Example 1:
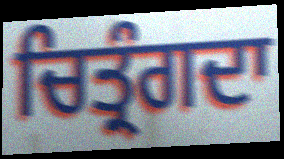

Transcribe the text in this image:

ਚਿਤ੍ਰੰਗਦਾ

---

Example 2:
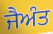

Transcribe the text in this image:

ਜੈਅੰਤ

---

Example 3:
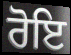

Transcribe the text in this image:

ਰੋਇ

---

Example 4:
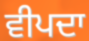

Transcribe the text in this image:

ਵੀਪਦਾ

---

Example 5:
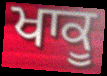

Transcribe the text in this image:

ਖਾਕੂ